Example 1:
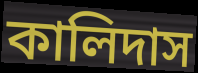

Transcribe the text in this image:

কালিদাস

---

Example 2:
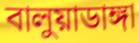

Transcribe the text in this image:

বালুয়াডাঙ্গা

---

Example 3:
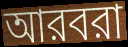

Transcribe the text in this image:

আরবরা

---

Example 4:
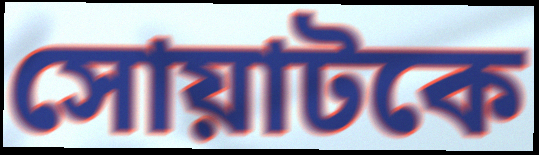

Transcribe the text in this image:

সোয়াটকে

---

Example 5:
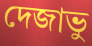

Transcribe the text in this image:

দেজাভু